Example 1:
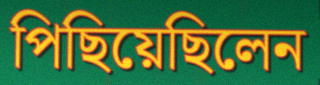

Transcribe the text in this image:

পিছিয়েছিলেন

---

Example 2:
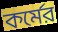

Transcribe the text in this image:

কর্মের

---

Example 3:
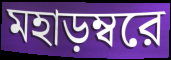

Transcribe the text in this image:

মহাড়ম্বরে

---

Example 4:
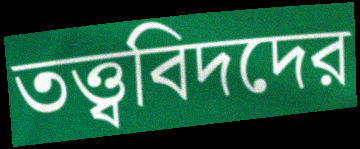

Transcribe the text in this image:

তত্ত্ববিদদের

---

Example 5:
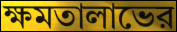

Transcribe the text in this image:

ক্ষমতালাভের